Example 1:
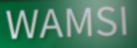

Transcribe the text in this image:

WAMSI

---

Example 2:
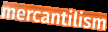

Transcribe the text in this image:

mercantilism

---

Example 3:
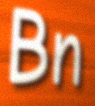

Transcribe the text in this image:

Bn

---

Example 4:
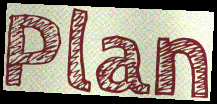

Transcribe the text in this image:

Plan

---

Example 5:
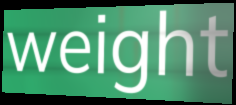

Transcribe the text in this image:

weight